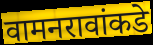
वामनरावांकडे